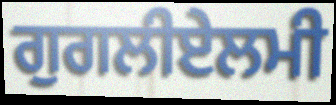
ਗੁਗਲੀਏਲਮੀ